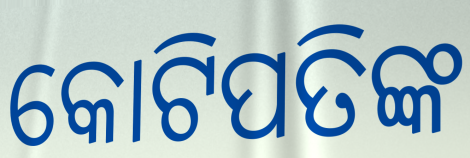
କୋଟିପତିଙ୍କ